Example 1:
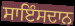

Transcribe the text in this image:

ਸਾਇੰਸਦਾਨ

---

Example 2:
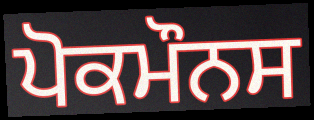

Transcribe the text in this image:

ਪੋਕਮੌਨਸ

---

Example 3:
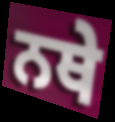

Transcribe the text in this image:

ਨਥੇ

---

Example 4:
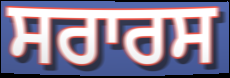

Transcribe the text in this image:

ਸਰਾਰਸ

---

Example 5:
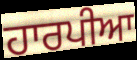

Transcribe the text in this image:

ਹਾਰਪੀਆ